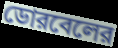
ডোরবেলের